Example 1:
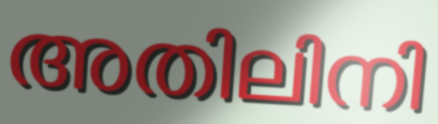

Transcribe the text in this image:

അതിലിനി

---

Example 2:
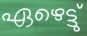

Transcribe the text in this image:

ഏഴെട്ടു്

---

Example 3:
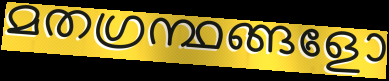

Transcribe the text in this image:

മതഗ്രന്ഥങ്ങളോ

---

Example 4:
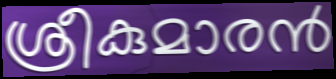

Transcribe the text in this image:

ശ്രീകുമാരൻ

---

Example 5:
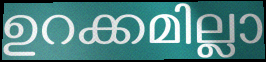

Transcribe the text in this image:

ഉറക്കമില്ലാ